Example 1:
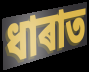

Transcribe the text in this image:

ধাৰাত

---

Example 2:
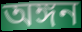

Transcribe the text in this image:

অঙ্গন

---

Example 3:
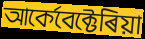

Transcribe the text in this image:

আৰ্কেবেক্টেৰিয়া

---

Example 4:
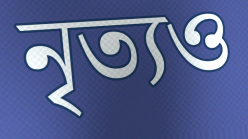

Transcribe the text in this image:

নৃত্যও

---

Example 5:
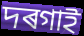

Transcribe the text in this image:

দৰগাই